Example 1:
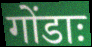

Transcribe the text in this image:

गोंडाः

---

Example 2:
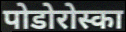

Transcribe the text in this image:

पोडोरोस्का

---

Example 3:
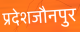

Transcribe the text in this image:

प्रदेशजौनपुर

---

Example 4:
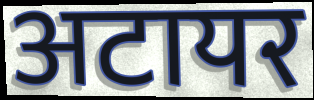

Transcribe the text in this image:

अटायर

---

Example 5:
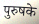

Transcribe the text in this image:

पुरुषके